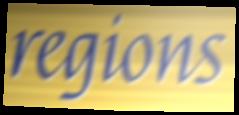
regions